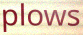
plows